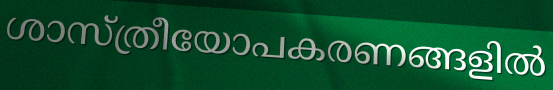
ശാസ്ത്രീയോപകരണങ്ങളിൽ